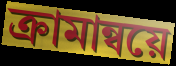
ক্রামান্বয়ে